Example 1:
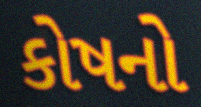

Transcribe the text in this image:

કોષનો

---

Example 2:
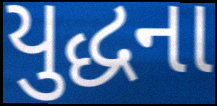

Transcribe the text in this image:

યુદ્ધના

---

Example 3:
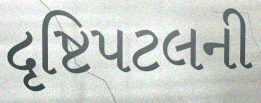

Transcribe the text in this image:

દૃષ્ટિપટલની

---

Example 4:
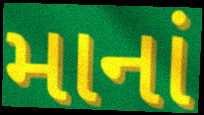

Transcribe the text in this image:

માનાં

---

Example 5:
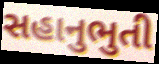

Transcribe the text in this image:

સહાનુભુતી